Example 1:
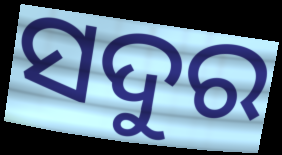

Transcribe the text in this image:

ସଦୁର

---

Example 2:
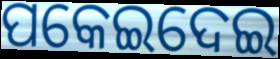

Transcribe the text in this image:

ପକେଇଦେଇ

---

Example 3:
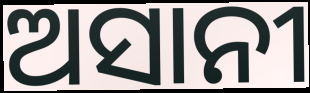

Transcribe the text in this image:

ଅସାନୀ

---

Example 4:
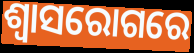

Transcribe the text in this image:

ଶ୍ଵାସରୋଗରେ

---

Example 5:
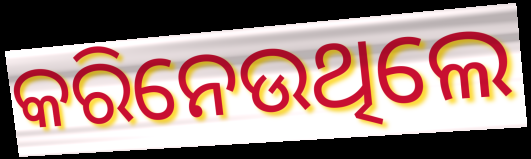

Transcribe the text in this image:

କରିନେଉଥିଲେ